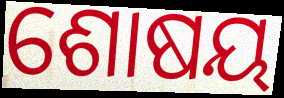
ଶୋଷୟ